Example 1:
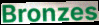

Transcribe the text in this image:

Bronzes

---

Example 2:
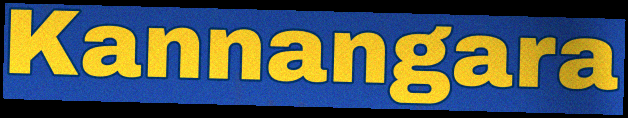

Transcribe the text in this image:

Kannangara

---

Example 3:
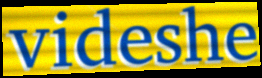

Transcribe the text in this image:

videshe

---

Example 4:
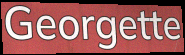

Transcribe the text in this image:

Georgette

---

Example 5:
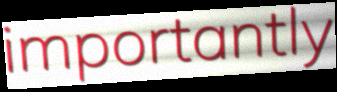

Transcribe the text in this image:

importantly